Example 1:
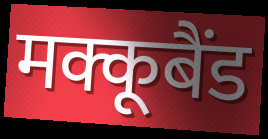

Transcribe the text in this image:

मक्कूबैंड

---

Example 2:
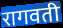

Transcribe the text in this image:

रागवती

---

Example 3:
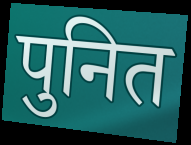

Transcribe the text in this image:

पुनित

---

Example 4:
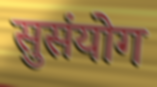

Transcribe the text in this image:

सुसंयोग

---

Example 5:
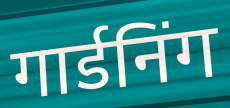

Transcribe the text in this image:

गार्डनिंग